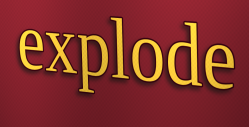
explode